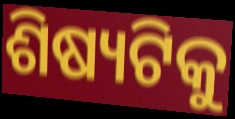
ଶିଷ୍ୟଟିକୁ